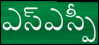
ఎస్ఎస్పీ